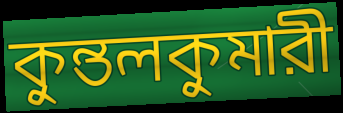
কুন্তলকুমারী